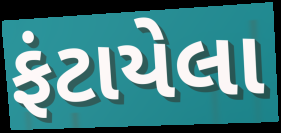
ફંટાયેલા